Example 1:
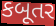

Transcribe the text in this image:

કબૂતર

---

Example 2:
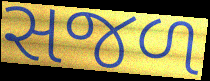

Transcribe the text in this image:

સજળ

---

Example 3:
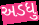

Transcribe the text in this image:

અડધુ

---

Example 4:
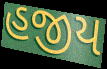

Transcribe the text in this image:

હજીય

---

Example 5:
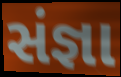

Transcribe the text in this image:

સંજ્ઞા